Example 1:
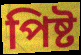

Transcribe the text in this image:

পিষ্ট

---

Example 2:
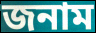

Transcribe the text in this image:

জনাম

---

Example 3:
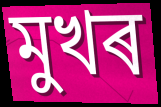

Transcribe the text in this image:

মুখৰ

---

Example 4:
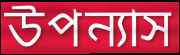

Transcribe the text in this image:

উপন্যাস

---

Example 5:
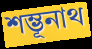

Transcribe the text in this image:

শম্ভূনাথ